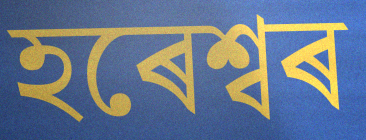
হৰেশ্বৰ